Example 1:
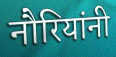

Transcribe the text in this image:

नौरियांनी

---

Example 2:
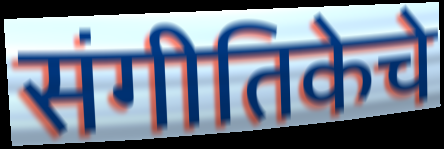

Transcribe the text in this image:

संगीतिकेचे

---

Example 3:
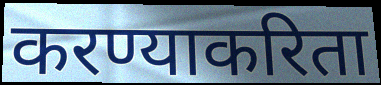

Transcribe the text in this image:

करण्याकरिता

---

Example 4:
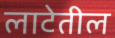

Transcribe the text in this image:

लाटेतील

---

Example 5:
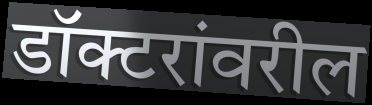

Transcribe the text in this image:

डॉक्टरांवरील